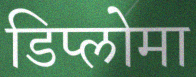
डिप्लोमा